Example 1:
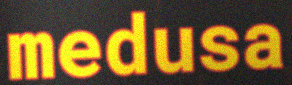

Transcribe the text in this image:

medusa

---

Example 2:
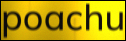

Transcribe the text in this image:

poachu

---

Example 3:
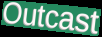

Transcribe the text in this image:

Outcast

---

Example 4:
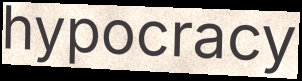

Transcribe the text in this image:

hypocracy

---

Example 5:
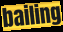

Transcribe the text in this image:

bailing